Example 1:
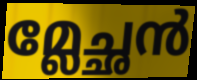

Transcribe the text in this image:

മ്ലേച്ഛൻ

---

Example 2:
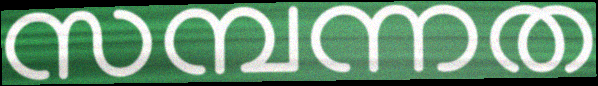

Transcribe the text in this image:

സമ്പന്നത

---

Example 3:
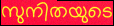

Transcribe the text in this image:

സുനിതയുടെ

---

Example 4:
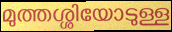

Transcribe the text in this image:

മുത്തശ്ശിയോടുള്ള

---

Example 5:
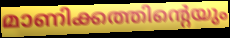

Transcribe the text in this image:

മാണിക്കത്തിന്റെയും